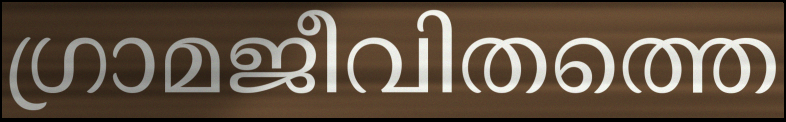
ഗ്രാമജീവിതത്തെ